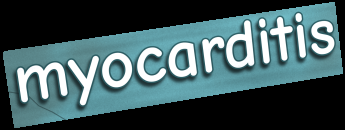
myocarditis